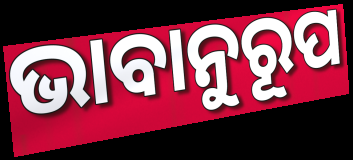
ଭାବାନୁରୂପ